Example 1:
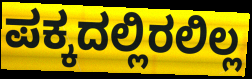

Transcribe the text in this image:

ಪಕ್ಕದಲ್ಲಿರಲಿಲ್ಲ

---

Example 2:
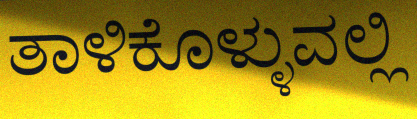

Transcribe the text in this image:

ತಾಳಿಕೊಳ್ಳುವಲ್ಲಿ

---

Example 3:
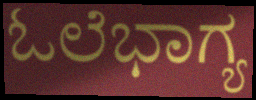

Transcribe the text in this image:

ಓಲೆಭಾಗ್ಯ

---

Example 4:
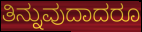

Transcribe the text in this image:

ತಿನ್ನುವುದಾದರೂ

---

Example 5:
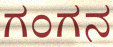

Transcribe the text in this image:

ಗಂಗನ